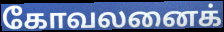
கோவலனைக்